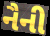
નૈની